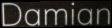
Damian